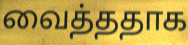
வைத்ததாக